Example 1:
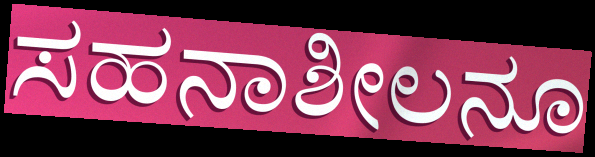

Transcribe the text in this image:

ಸಹನಾಶೀಲನೂ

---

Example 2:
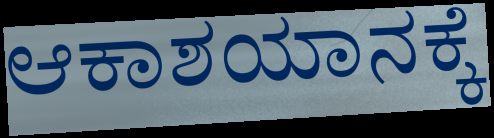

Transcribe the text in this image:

ಆಕಾಶಯಾನಕ್ಕೆ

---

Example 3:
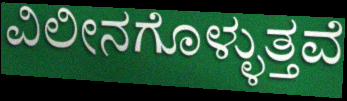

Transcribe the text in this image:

ವಿಲೀನಗೊಳ್ಳುತ್ತವೆ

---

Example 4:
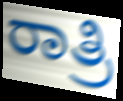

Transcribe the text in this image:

ರಾತ್ರಿ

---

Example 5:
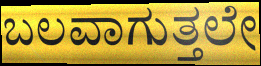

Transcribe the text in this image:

ಬಲವಾಗುತ್ತಲೇ